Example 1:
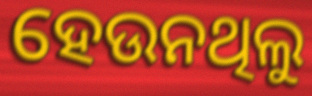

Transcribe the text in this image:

ହେଉନଥିଲୁ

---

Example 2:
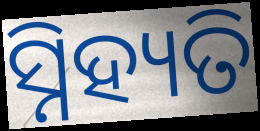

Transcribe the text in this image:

ସ୍ନିହ୍ୟତି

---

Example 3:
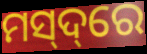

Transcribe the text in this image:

ମସ୍‌ଦ୍‌ରେ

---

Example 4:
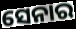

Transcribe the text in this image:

ସେନାର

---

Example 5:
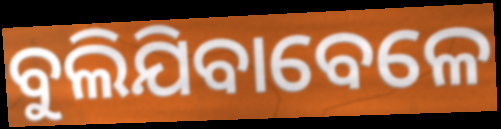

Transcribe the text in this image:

ବୁଲିଯିବାବେଳେ